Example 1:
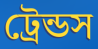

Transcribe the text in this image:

ট্রেন্ডস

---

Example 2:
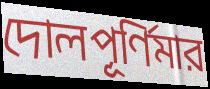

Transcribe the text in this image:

দোলপূর্ণিমার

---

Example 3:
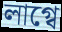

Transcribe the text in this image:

লাগ্বে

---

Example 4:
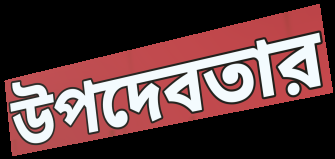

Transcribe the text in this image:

উপদেবতার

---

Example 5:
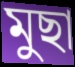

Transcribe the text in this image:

মুছা